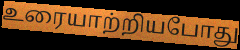
உரையாற்றியபோது